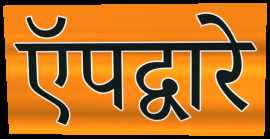
ऍपद्वारे